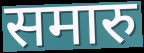
समारु